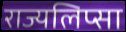
राज्यलिप्सा